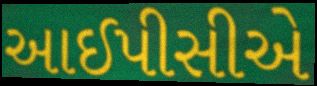
આઈપીસીએ